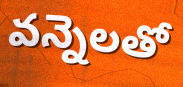
వన్నెలతో